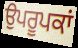
ਉਪਰੂਪਕਾਂ